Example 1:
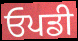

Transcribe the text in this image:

ਓਪਡੀ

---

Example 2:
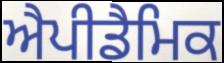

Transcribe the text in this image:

ਐਪੀਡੈਮਿਕ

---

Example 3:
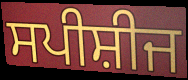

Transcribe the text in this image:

ਸਪੀਸ਼ੀਜ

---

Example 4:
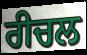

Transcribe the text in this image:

ਰੀਚਲ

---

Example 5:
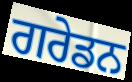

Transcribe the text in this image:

ਗਰੇਡਨ